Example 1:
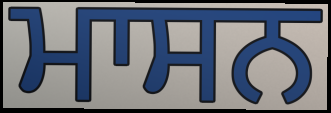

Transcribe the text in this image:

ਮਾਸਨ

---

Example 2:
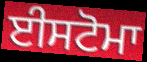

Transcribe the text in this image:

ਈਸਟੋਮਾ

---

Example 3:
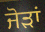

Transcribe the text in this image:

ਜੋਡ਼ਾਂ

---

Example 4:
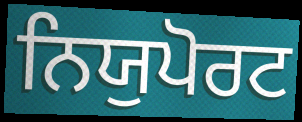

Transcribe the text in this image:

ਨਿਯੁਪੋਰਟ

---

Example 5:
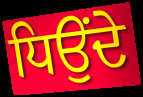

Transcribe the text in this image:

ਧਿਉਂਦੇ